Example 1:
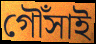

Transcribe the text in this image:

গৌঁসাই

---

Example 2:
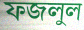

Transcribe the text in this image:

ফজলুল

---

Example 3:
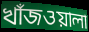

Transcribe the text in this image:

খাঁজওয়ালা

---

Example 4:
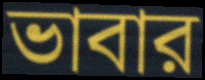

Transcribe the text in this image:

ভাবার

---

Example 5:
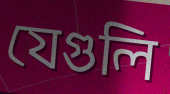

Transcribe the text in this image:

যেগুলি